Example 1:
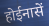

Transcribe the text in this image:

होईनासें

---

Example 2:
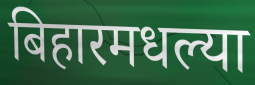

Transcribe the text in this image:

बिहारमधल्या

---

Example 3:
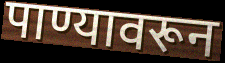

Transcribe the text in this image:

पाण्यावरून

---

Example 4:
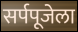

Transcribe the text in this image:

सर्पपूजेला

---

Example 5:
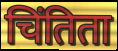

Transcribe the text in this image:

चिंतिता